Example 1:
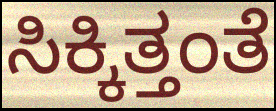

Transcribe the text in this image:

ಸಿಕ್ಕಿತ್ತಂತೆ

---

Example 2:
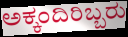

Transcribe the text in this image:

ಅಕ್ಕಂದಿರಿಬ್ಬರು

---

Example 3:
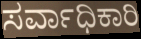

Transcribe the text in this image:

ಸರ್ವಾಧಿಕಾರಿ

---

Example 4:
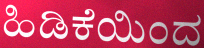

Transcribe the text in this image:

ಹಿಡಿಕೆಯಿಂದ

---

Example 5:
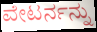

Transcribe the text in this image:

ವೇಟರ್ನನ್ನು